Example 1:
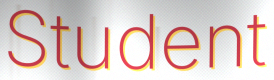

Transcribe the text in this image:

Student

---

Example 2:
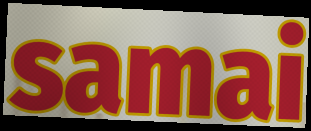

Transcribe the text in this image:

samai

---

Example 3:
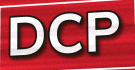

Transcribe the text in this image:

DCP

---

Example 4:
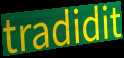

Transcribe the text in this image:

tradidit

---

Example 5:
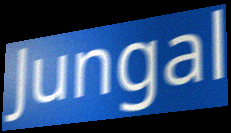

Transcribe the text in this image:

Jungal